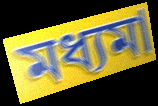
মধ্যমা